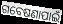
ଗବେଷଣାପାଇଁ